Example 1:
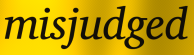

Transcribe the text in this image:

misjudged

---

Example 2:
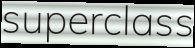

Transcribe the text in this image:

superclass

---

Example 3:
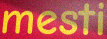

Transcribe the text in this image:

mesti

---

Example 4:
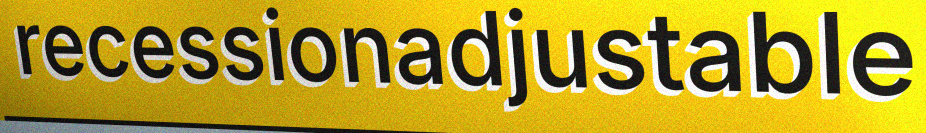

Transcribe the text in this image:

recessionadjustable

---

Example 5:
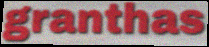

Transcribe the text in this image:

granthas